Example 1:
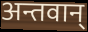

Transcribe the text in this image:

अन्तवान्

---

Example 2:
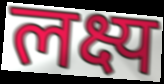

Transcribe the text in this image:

लक्ष्‍य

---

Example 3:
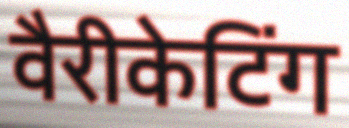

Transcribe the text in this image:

वैरीकेटिंग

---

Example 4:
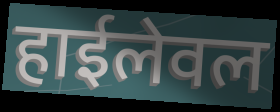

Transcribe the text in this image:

हाईलेवल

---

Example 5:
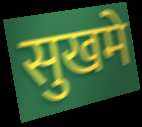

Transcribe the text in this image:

सुखमे